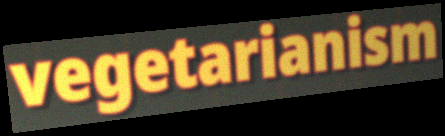
vegetarianism